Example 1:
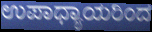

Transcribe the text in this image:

ಉಪಾಧ್ಯಾಯರಿಂದ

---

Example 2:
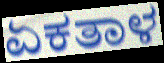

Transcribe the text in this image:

ಏಕತಾಳ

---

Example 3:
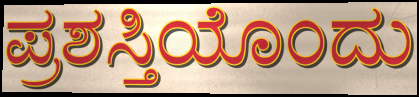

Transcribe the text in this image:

ಪ್ರಶಸ್ತಿಯೊಂದು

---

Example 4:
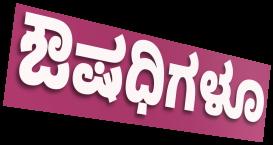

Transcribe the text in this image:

ಔಷಧಿಗಳೂ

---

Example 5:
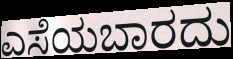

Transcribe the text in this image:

ಎಸೆಯಬಾರದು